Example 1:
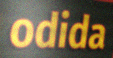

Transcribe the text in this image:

odida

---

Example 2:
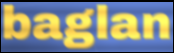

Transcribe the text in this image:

baglan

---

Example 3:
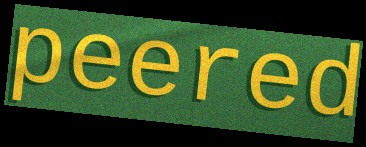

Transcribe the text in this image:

peered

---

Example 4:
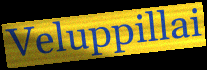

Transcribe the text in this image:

Veluppillai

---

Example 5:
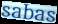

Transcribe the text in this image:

sabas